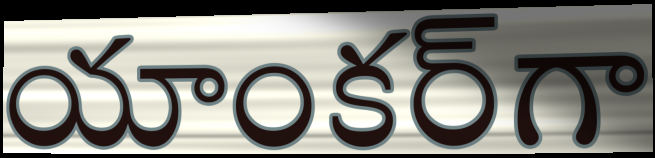
యాంకర్‌గా